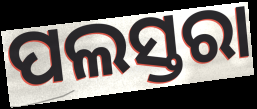
ପଲସ୍ତରା